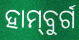
ହାମ୍‌ବୁର୍ଗ